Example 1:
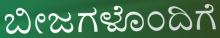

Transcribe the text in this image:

ಬೀಜಗಳೊಂದಿಗೆ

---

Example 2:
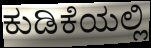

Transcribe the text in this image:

ಕುಡಿಕೆಯಲ್ಲಿ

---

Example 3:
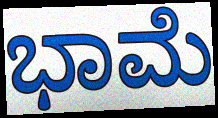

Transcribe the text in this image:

ಭಾಮೆ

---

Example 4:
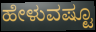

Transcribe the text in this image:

ಹೇಳುವಷ್ಟೂ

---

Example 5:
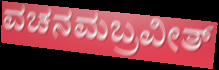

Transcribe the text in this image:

ವಚನಮಬ್ರವೀತ್